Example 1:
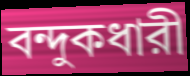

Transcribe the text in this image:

বন্দুকধারী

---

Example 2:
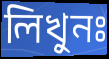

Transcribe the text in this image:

লিখুনঃ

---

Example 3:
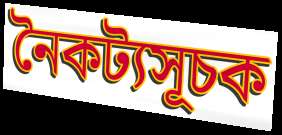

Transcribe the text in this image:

নৈকট্যসূচক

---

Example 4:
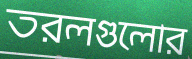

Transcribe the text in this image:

তরলগুলোর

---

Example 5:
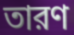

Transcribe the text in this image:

তারণ